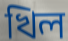
খিল